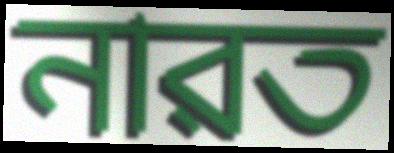
নাৱত